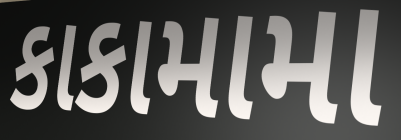
કાકામામા